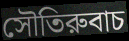
সৌতিরুবাচ